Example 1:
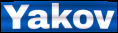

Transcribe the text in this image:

Yakov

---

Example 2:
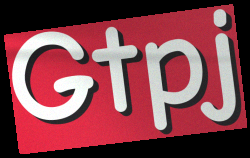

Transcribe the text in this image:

Gtpj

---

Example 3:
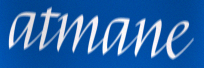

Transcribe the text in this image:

atmane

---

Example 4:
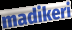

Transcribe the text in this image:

madikeri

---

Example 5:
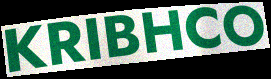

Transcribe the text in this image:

KRIBHCO